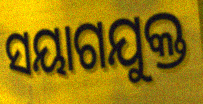
ସୟାଗଯୁକ୍ତ